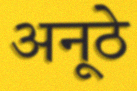
अनूठे